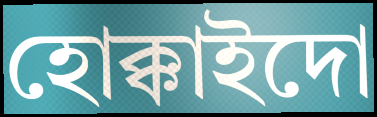
হোক্কাইদো